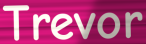
Trevor